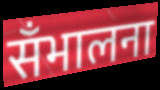
सँभालना